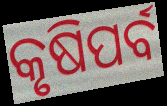
କୃଷିପର୍ବ